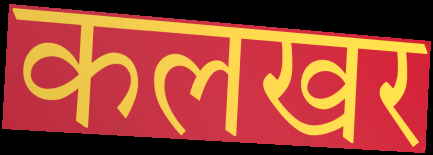
कलखर